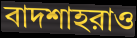
বাদশাহরাও